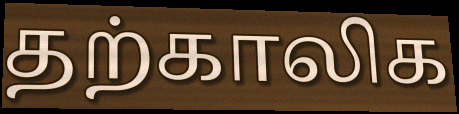
தற்காலிக